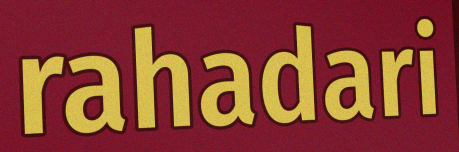
rahadari